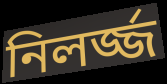
নিলর্জ্জ